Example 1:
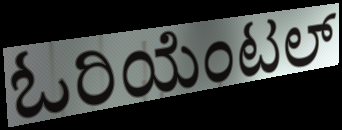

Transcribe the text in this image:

ಓರಿಯೆಂಟಲ್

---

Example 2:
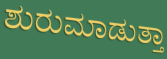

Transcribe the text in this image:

ಶುರುಮಾಡುತ್ತಾ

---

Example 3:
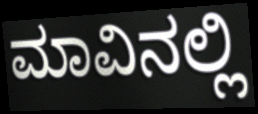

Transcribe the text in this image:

ಮಾವಿನಲ್ಲಿ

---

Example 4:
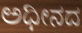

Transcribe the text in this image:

ಅಧೀನದ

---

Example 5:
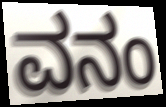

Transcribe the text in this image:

ವನಂ